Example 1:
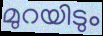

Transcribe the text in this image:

മുറയിടും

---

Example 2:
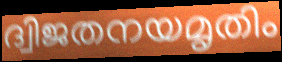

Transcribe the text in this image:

ദ്വിജതനയമൃതിം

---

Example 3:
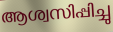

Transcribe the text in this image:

ആശ്വസിപ്പിച്ചു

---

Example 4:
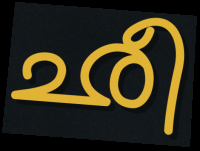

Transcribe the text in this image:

ഛീ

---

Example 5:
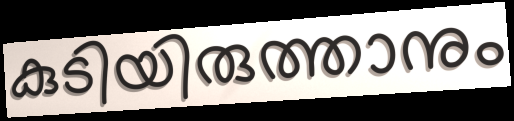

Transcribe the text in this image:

കുടിയിരുത്താനും